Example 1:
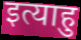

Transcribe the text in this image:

इत्याहु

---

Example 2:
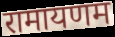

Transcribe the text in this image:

रामायणम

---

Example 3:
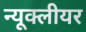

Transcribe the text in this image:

न्यूक्लीयर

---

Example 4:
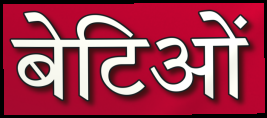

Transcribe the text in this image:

बेटिओं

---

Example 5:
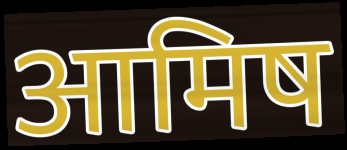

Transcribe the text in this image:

आमिष